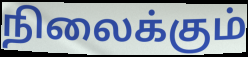
நிலைக்கும்